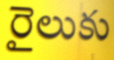
రైలుకు